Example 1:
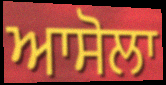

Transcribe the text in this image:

ਆਸੋਲਾ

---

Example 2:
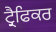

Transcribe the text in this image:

ਟ੍ਰੈਫਿਕਰ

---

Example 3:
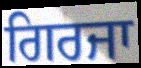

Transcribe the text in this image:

ਗਿਰਜਾ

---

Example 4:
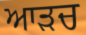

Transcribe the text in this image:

ਆੜਚ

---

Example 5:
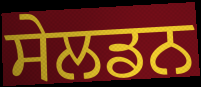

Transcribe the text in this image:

ਸੇਲਡਨ